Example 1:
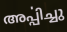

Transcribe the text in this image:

അൎപ്പിച്ചു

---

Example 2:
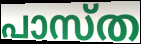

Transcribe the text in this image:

പാസ്ത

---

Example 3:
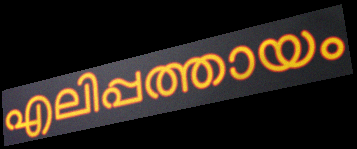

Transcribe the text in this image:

എലിപ്പത്തായം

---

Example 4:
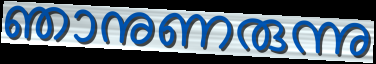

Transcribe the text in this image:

ഞാനുണരുന്നു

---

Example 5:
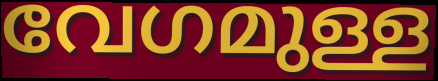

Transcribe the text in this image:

വേഗമുള്ള